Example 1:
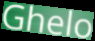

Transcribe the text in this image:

Ghelo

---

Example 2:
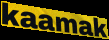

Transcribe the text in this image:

kaamak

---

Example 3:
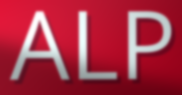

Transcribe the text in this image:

ALP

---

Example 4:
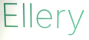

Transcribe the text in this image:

Ellery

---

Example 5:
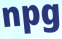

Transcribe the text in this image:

npg